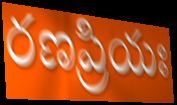
రణప్రియః